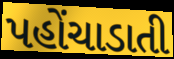
પહોંચાડાતી